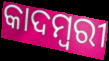
କାଦମ୍ୱରୀ